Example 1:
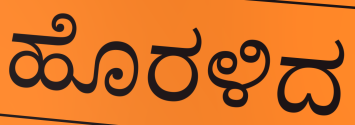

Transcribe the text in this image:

ಹೊರಳಿದ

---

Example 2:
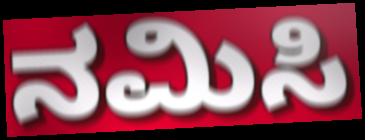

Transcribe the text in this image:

ನಮಿಸಿ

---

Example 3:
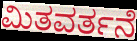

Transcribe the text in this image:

ಮಿತವರ್ತನೆ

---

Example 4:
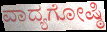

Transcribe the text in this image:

ವಾದ್ಯಗೋಷ್ಠಿ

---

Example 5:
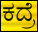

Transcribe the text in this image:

ಕದ್ರೆ